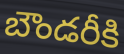
బౌండరీకి